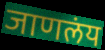
जाणलंय